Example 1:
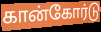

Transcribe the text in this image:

கான்கோர்டு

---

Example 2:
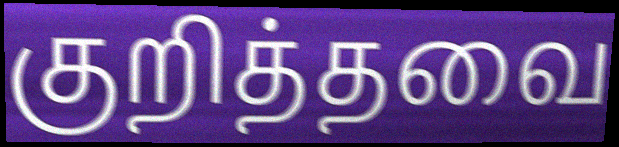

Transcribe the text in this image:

குறித்தவை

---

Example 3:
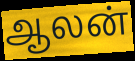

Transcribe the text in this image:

ஆலன்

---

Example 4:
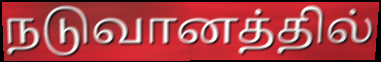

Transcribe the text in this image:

நடுவானத்தில்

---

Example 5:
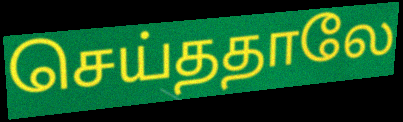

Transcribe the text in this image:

செய்ததாலே